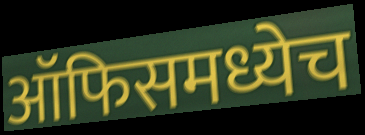
ऑफिसमध्येच